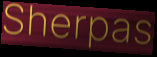
Sherpas